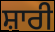
ਸ਼ਾਰੀ